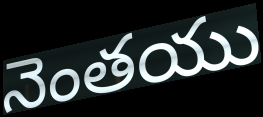
నెంతయు